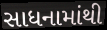
સાધનામાંથી